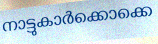
നാട്ടുകാർക്കൊക്കെ